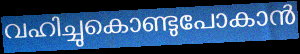
വഹിച്ചുകൊണ്ടുപോകാൻ